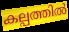
കല്പത്തിൽ